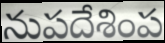
నుపదేశింప